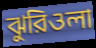
ঝুরিওলা